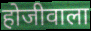
होजीवाला